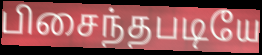
பிசைந்தபடியே